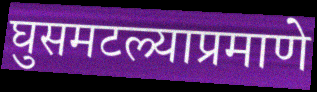
घुसमटल्याप्रमाणे